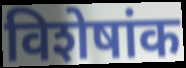
विशेषांक